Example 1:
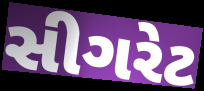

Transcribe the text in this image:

સીગરેટ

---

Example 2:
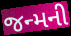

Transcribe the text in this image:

જન્મની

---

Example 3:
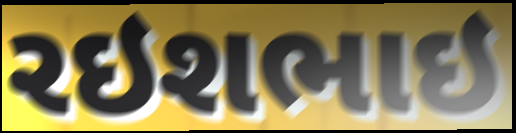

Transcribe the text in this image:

રઇશભાઇ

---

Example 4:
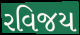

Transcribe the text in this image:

રવિજય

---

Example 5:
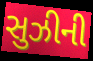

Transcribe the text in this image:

સુઝીની